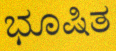
ಭೂಷಿತ